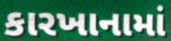
કારખાનામાં